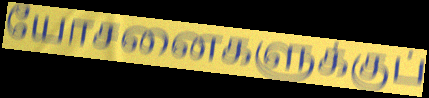
யோசனைகளுக்குப்